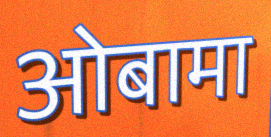
ओबामा